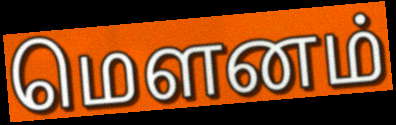
மௌனம்